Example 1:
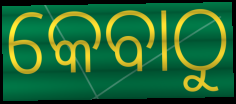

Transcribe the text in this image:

କେବାଠୁ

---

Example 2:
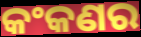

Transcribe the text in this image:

କଂକଣର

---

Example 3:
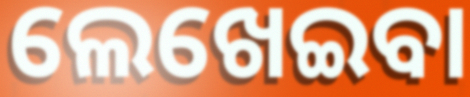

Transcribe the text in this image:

ଲେଖେଇବା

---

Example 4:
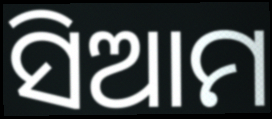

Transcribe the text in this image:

ସିଆମ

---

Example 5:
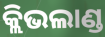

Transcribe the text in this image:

କ୍ଲିଭଲାଣ୍ଡ